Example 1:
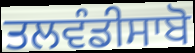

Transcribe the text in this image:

ਤਲਵੰਡੀਸਾਬੋ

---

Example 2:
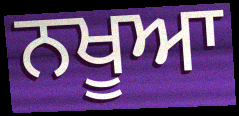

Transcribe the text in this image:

ਨਖੂਆ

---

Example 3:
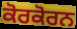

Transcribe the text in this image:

ਕੋਰਕੋਰਨ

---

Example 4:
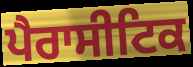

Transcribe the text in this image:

ਪੈਰਾਸੀਟਿਕ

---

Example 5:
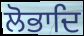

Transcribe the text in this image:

ਲੋਭਾਦਿ